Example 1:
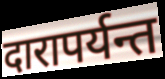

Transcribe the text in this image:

दारापर्यन्त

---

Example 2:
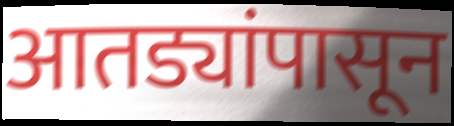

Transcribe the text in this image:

आतड्यांपासून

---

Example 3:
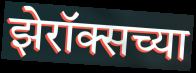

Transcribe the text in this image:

झेरॉक्सच्या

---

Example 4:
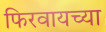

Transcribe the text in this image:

फिरवायच्या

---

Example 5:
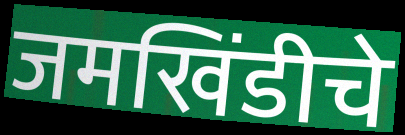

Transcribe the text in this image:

जमखिंडीचे